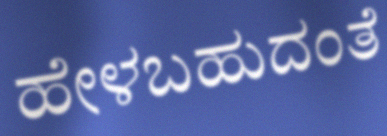
ಹೇಳಬಹುದಂತೆ